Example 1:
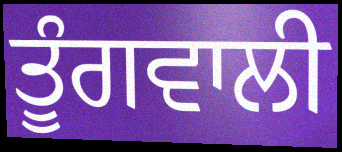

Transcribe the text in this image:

ਤੂੰਗਵਾਲੀ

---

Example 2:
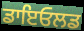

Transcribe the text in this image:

ਡਾਇਓਲਡ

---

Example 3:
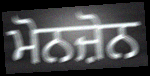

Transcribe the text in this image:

ਮੋਨਜ਼ੋਨ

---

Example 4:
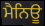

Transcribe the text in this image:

ਮੈਨਿਊ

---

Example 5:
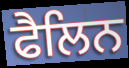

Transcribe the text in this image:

ਫੈਲਿਨ